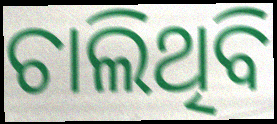
ଚାଲିଥିବି